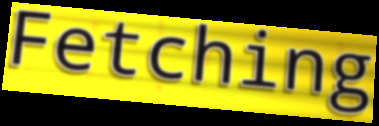
Fetching